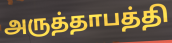
அருத்தாபத்தி